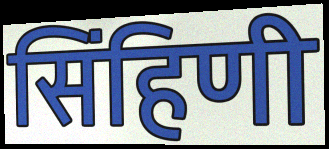
सिंहिणी